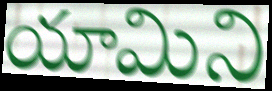
యామిని